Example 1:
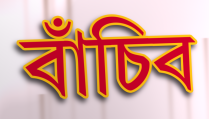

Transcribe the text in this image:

বাঁচিব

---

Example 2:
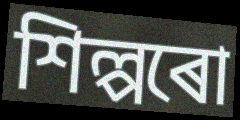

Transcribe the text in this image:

শিল্পৰো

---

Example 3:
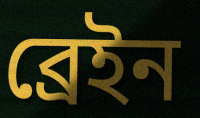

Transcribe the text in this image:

ব্ৰেইন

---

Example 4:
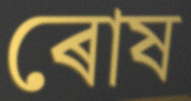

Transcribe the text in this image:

ৰোষ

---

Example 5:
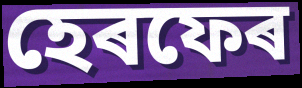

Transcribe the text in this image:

হেৰফেৰ